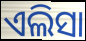
ଏଲିସା